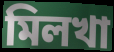
মিলখা